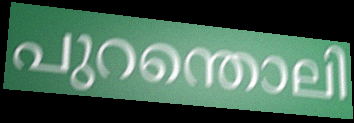
പുറന്തൊലി